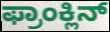
ಫ್ರಾಂಕ್ಲಿನ್